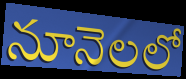
నూనెలలో